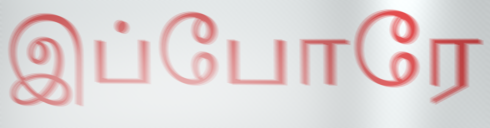
இப்போரே